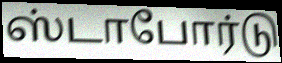
ஸ்டாபோர்டு